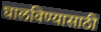
घालविण्यासाठी